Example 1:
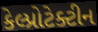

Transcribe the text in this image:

કેલ્પ્રોટેક્ટીન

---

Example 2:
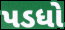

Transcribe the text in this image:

પડધો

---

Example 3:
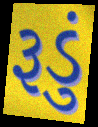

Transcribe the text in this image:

રૂડું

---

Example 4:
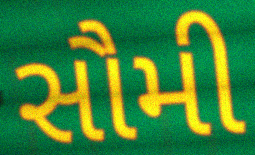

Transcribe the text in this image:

સૌમી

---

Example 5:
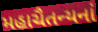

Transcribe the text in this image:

મહાચૈતન્યનાં